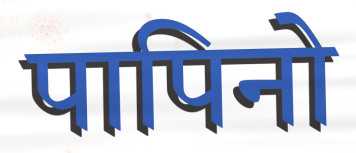
पापिनो